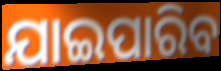
ଯାଇପାରିବ